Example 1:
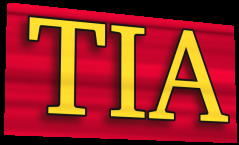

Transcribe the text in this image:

TIA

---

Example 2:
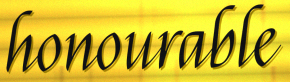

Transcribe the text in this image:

honourable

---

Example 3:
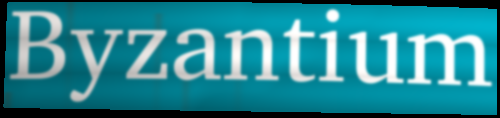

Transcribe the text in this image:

Byzantium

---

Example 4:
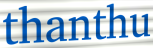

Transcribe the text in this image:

thanthu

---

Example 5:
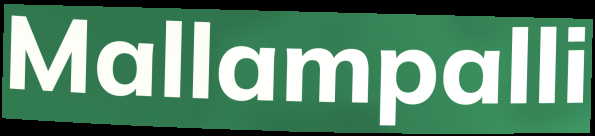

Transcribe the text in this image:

Mallampalli